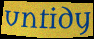
untidy